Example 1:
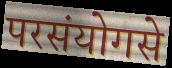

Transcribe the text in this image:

परसंयोगसे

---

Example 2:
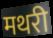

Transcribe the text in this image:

मथरी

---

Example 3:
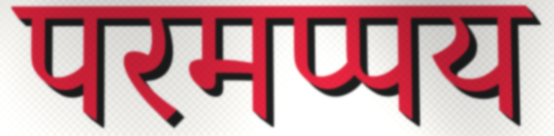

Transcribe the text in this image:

परमप्पय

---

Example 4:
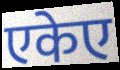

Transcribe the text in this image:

एकेए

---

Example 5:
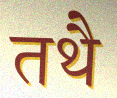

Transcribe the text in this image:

तथै